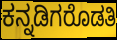
ಕನ್ನಡಿಗರೊಡತಿ